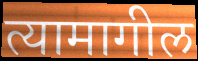
त्यामागील